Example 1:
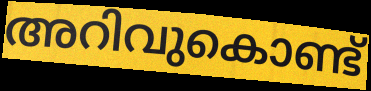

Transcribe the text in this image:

അറിവുകൊണ്ട്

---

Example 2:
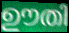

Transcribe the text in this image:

ഊതി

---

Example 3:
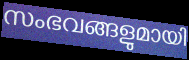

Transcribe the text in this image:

സംഭവങ്ങളുമായി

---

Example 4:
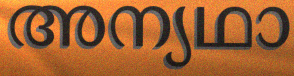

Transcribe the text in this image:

അന്യഥാ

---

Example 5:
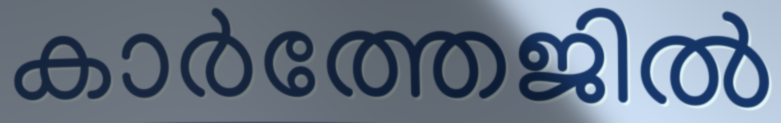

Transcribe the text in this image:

കാർത്തേജിൽ